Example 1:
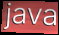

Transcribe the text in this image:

java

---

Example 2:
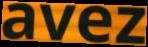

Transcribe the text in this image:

avez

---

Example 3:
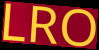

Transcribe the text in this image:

LRO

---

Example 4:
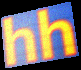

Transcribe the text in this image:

hh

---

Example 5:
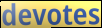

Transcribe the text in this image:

devotes